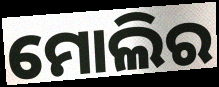
ମୋଲିର